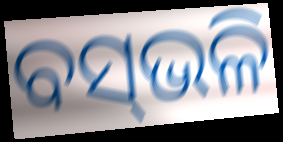
ବସ୍‌ଭଳି